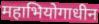
महाभियोगाधीन